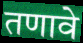
तणावे